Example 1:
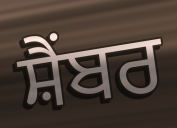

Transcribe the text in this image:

ਸ਼ੈਂਬਰ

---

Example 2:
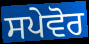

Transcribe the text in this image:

ਸਪੇਵੋਰ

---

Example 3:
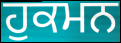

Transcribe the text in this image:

ਹੁਕਮਨ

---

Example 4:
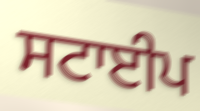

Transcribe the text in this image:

ਸਟਾਈਪ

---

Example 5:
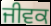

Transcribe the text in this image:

ਜੀਵਕ